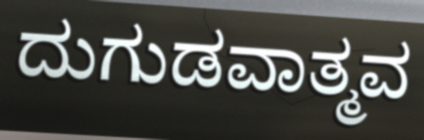
ದುಗುಡವಾತ್ಮವ